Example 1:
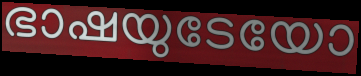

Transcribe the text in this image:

ഭാഷയുടേയോ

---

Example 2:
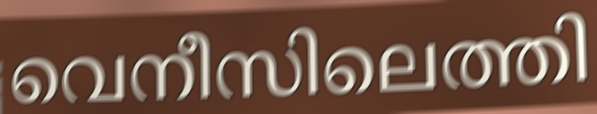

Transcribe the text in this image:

വെനീസിലെത്തി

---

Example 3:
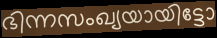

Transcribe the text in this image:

ഭിന്നസംഖ്യയായിട്ടോ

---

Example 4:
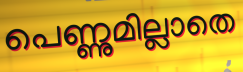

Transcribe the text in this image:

പെണ്ണുമില്ലാതെ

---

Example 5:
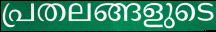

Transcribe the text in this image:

പ്രതലങ്ങളുടെ